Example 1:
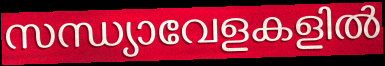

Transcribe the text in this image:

സന്ധ്യാവേളകളിൽ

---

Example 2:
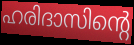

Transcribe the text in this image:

ഹരിദാസിന്റെ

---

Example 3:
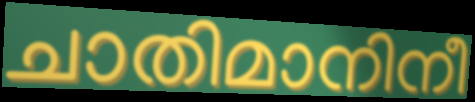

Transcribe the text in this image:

ചാതിമാനിനീ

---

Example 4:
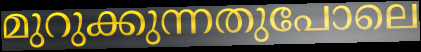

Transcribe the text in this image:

മുറുക്കുന്നതുപോലെ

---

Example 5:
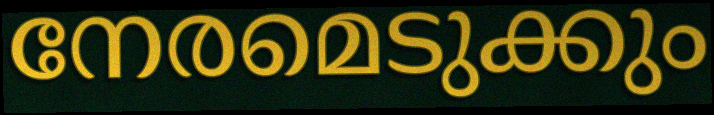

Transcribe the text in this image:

നേരമെടുക്കും